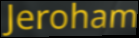
Jeroham